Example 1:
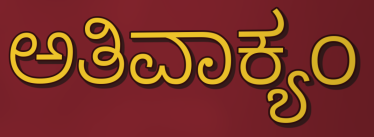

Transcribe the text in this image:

ಅತಿವಾಕ್ಯಂ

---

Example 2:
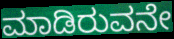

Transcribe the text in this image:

ಮಾಡಿರುವನೇ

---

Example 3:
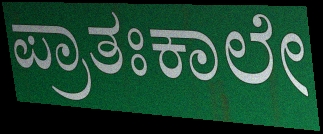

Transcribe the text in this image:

ಪ್ರಾತಃಕಾಲೇ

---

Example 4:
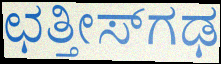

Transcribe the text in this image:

ಛತ್ತೀಸ್‌ಗಢ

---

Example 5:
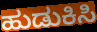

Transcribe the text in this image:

ಹುಡುಕಿಸಿ